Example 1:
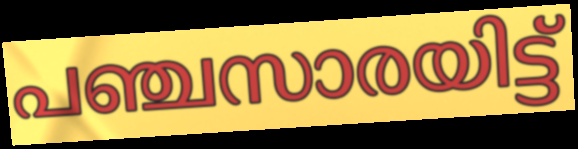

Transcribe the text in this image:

പഞ്ചസാരയിട്ട്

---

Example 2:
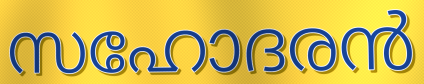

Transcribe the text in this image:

സഹോദരൻ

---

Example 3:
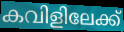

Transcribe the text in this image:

കവിളിലേക്ക്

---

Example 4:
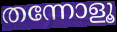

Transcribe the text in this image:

തന്നോളൂ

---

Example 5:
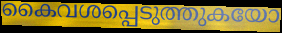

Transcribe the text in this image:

കൈവശപ്പെടുത്തുകയോ